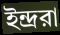
ইন্দ্ররা